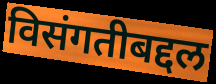
विसंगतीबद्दल